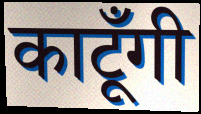
काटूँगी